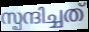
സ്പന്ദിച്ചത്